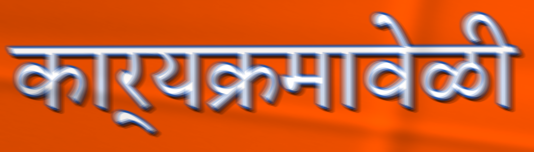
कार्यक्रमावेळी